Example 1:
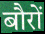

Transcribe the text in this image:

बौरों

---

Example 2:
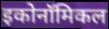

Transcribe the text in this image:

इकोनॉमिकल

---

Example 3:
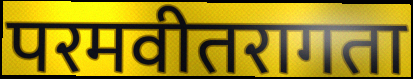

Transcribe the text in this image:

परमवीतरागता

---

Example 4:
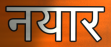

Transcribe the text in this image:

नयार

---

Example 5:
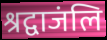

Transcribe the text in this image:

श्रद्वाजंलि